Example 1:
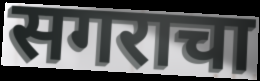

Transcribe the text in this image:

सगराचा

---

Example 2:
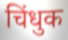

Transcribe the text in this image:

चिंधुक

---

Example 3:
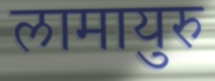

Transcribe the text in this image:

लामायुरु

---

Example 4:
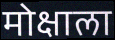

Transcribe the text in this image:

मोक्षाला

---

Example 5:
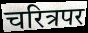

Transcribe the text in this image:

चरित्रपर